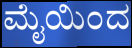
ಮೈಯಿಂದ